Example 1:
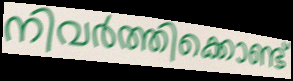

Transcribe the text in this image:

നിവർത്തിക്കൊണ്ട്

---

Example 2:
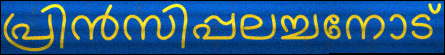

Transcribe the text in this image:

പ്രിൻസിപ്പലച്ചനോട്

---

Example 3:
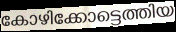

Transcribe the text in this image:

കോഴിക്കോട്ടെത്തിയ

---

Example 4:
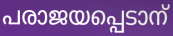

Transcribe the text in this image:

പരാജയപ്പെടാന്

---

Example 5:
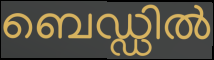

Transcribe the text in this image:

ബെഡ്ഡിൽ